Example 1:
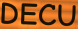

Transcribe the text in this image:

DECU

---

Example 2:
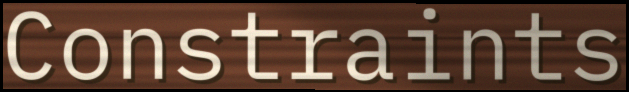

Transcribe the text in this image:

Constraints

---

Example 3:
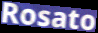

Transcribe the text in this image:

Rosato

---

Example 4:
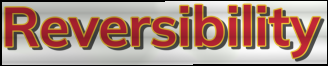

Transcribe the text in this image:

Reversibility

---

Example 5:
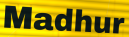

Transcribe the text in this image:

Madhur